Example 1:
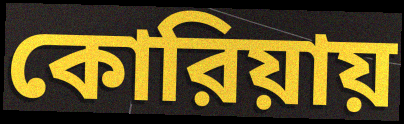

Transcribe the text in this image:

কোরিয়ায়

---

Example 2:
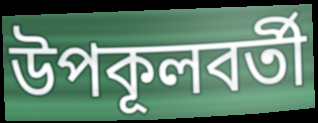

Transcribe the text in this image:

উপকূলবর্তী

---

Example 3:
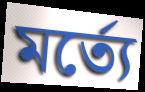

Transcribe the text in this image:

মর্ত্যে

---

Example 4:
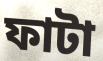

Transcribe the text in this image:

ফাটা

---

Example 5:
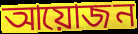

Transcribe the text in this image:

আয়োজন